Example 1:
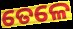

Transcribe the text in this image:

ତେଳେ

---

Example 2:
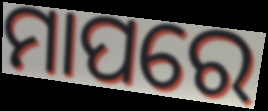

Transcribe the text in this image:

ମାପରେ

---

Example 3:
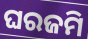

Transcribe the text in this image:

ଘରଜମି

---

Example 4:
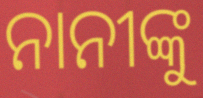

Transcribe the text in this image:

ନାନୀଙ୍କୁ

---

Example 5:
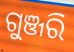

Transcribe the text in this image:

ଗୁଞ୍ଜରି